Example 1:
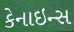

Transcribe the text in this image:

કેનાઇન્સ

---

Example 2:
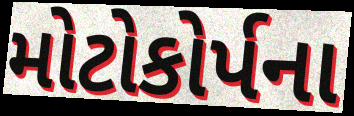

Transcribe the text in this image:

મોટોકોર્પના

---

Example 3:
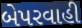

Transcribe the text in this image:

બેપરવાહી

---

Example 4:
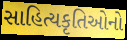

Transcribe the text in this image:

સાહિત્યકૃતિઓનો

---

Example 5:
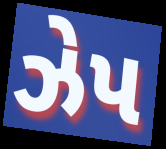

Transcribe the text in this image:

ઝેપ